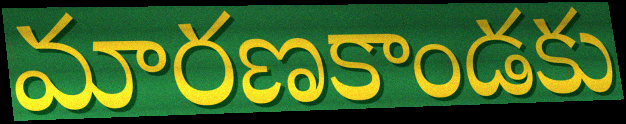
మారణకాండకు